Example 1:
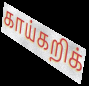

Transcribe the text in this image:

காய்கறிக்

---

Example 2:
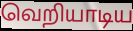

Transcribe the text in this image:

வெறியாடிய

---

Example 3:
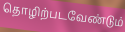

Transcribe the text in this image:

தொழிற்படவேண்டும்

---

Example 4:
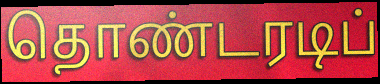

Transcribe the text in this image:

தொண்டரடிப்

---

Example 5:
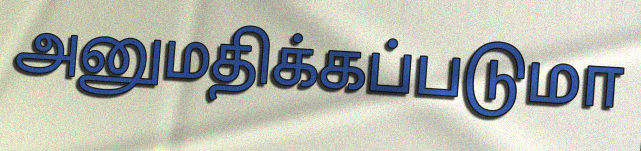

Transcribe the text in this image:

அனுமதிக்கப்படுமா